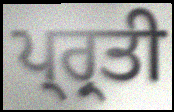
ਪ੍ਰ੍ਰਤੀ